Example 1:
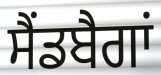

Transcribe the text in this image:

ਸੈਂਡਬੈਗਾਂ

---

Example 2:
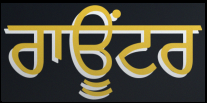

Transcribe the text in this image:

ਰਾਊਂਟਰ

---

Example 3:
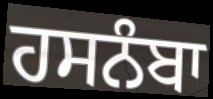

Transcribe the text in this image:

ਹਸਨੰਬਾ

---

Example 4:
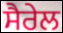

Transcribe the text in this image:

ਸੈਰੇਲ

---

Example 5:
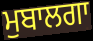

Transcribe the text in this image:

ਮੁਬਾਲਗਾ